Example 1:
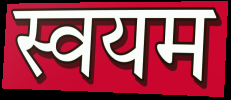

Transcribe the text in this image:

स्वयम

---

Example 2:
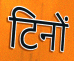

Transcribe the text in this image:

टिनों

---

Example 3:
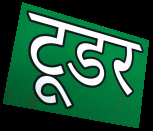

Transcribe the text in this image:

टूडर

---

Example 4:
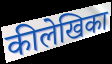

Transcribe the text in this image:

कीलेखिका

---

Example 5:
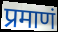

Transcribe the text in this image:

प्रमाणं